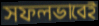
সফলভাবেই